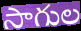
సాగుల